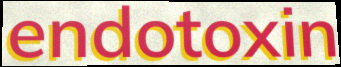
endotoxin